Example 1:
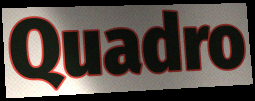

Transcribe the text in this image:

Quadro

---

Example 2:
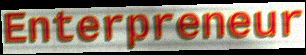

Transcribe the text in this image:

Enterpreneur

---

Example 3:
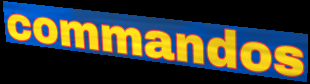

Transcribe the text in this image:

commandos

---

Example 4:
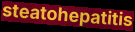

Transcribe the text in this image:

steatohepatitis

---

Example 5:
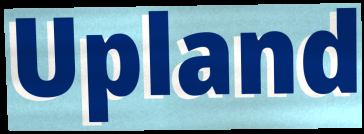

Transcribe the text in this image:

Upland